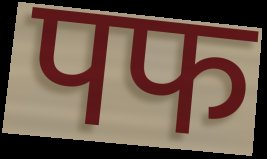
पफ